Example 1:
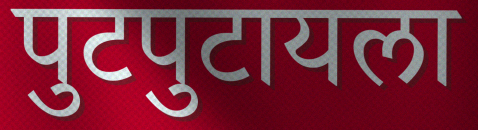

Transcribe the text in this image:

पुटपुटायला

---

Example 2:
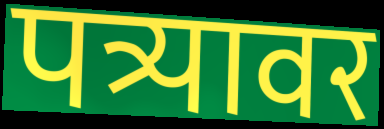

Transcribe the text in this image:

पत्र्यावर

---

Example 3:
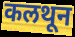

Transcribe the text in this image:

कलथून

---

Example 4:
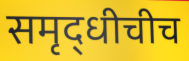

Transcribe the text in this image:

समृद्धीचीच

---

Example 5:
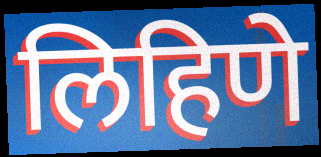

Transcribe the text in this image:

लिहिणे